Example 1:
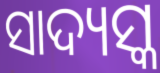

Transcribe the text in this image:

ସାଦ୍ୟସ୍କ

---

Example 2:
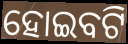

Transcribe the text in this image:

ହୋଇବଟି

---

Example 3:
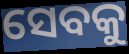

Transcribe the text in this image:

ସେବକୁ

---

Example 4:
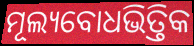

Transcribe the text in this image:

ମୂଲ୍ୟବୋଧଭିତ୍ତିକ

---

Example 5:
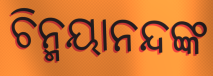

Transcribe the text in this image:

ଚିନ୍ମୟାନନ୍ଦଙ୍କ